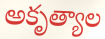
అకృత్యాల